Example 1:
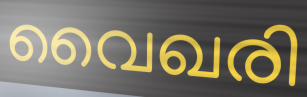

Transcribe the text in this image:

വൈഖരി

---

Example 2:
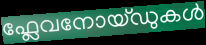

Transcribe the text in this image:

ഫ്ലേവനോയ്ഡുകൾ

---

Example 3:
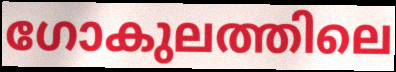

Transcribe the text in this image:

ഗോകുലത്തിലെ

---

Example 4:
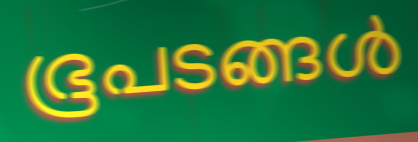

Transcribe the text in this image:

ഭൂപടങ്ങൾ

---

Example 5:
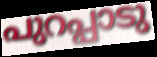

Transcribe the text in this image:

പുറപ്പാടു